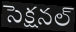
సెక్షనల్